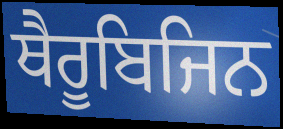
ਥੈਰੂਬਿਜਿਨ